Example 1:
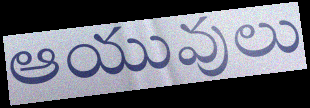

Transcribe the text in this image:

ఆయువులు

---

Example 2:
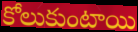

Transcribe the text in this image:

కోలుకుంటాయి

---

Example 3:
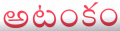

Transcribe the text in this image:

అటంకం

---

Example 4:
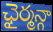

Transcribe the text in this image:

ఛైర్మన్గా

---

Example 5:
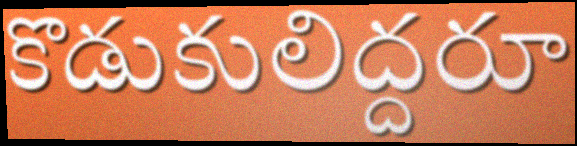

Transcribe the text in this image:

కొడుకులిద్దరూ